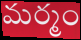
మర్మం